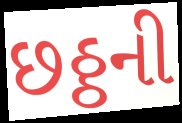
છઠ્ઠની